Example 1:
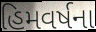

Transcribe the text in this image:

હિમવર્ષના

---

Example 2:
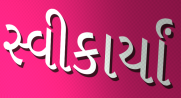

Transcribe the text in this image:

સ્વીકાર્યાં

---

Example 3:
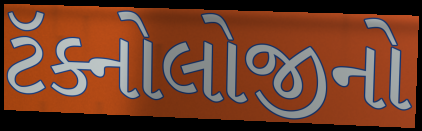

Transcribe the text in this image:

ટૅક્નોલોજીનો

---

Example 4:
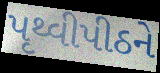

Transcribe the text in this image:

પૃથ્વીપીઠને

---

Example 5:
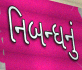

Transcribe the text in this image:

નિબન્ધનું